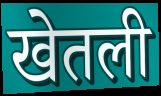
खेतली